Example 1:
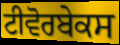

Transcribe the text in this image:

ਟੀਵੋਰਬੇਕਸ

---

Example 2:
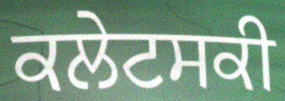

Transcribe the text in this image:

ਕਲੇਟਸਕੀ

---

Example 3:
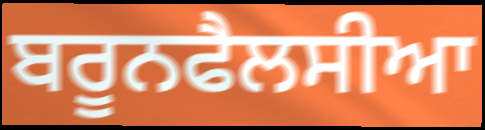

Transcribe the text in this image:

ਬਰੂਨਫੈਲਸੀਆ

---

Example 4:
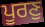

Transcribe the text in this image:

ਪੂਰਣੁ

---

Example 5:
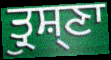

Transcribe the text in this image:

ਤ੍ਰੁਸ਼੍ਣਾ